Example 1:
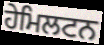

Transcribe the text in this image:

ਹੇਮਿਲਟਨ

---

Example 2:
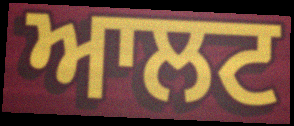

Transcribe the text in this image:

ਆਲਟ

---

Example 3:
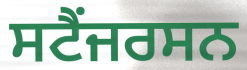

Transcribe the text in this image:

ਸਟੈਂਜਰਸਨ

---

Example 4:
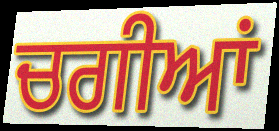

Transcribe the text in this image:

ਚਗੀਆਂ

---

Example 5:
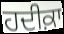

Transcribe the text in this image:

ਹਦੀਕ਼ਾ